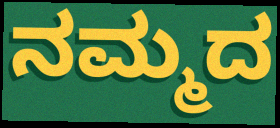
ನಮ್ಮದ